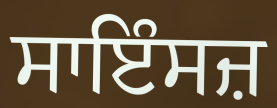
ਸਾਇੰਸਜ਼